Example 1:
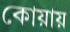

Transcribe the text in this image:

কোয়ায়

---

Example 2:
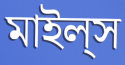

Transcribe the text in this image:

মাইল্‌স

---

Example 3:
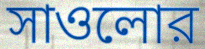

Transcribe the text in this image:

সাওলোর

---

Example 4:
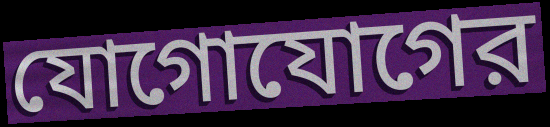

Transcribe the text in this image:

যোগোযোগের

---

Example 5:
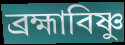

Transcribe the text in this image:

ব্রহ্মাবিষ্ণু